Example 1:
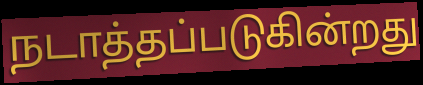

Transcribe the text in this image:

நடாத்தப்படுகின்றது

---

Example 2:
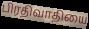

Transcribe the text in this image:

பிரதிவாதியை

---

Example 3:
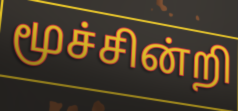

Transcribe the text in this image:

மூச்சின்றி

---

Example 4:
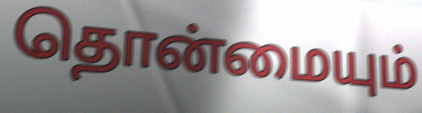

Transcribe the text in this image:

தொன்மையும்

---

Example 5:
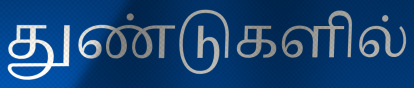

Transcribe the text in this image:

துண்டுகளில்